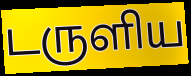
டருளிய